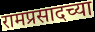
रामप्रसादच्या